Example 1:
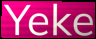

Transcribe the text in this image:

Yeke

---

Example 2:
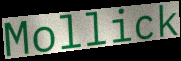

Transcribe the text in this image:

Mollick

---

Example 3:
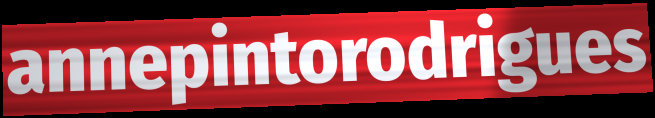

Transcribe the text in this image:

annepintorodrigues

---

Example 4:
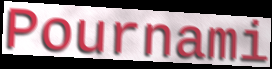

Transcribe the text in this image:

Pournami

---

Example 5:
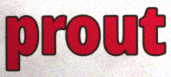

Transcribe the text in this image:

prout